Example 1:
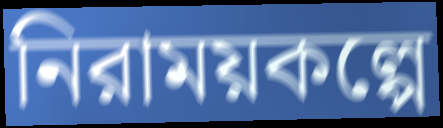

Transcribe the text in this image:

নিরাময়কল্পে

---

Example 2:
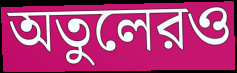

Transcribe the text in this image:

অতুলেরও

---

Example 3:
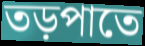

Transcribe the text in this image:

তড়পাতে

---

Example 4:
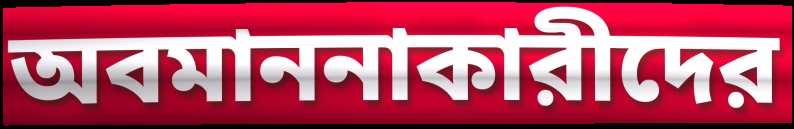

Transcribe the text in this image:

অবমাননাকারীদের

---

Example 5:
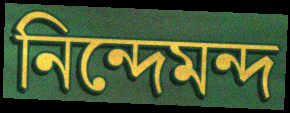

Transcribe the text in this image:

নিন্দেমন্দ